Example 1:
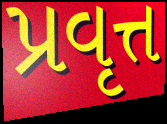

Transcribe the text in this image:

પ્રવૃત્ત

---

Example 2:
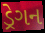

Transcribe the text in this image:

ડ્રેગન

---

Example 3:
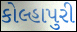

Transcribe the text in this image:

કોલ્હાપુરી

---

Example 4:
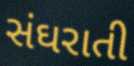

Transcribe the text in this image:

સંઘરાતી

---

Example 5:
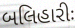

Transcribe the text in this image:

બલિહારીઃ